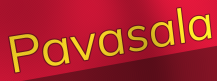
Pavasala